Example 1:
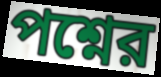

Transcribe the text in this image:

পশ্নের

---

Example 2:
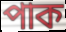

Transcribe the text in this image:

পাক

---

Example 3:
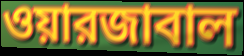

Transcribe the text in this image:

ওয়ারজাবাল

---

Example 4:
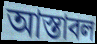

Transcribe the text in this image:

আস্তাবল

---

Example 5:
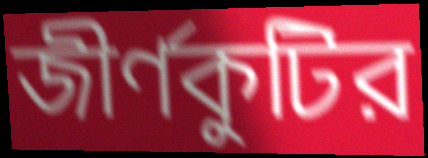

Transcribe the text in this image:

জীর্ণকুটির